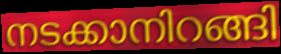
നടക്കാനിറങ്ങി